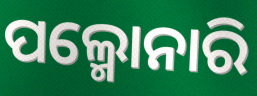
ପଲ୍ମୋନାରି